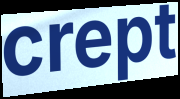
crept